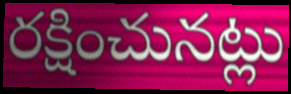
రక్షించునట్లు